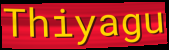
Thiyagu